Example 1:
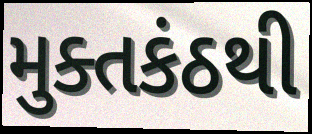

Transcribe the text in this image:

મુક્તકંઠથી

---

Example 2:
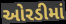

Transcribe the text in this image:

ઓરડીમાં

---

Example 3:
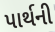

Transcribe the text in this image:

પાર્થની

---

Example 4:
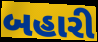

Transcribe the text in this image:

બહારી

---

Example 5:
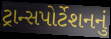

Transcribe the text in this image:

ટ્રાન્સપોર્ટેશનનું